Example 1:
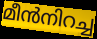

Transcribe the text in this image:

മീൻനിറച്ച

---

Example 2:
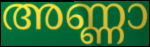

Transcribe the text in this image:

അണ്ണാ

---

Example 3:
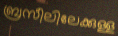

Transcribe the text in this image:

ബ്രസീലിലേക്കുള്ള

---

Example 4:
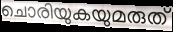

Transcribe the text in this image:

ചൊരിയുകയുമരുത്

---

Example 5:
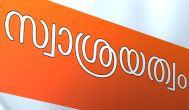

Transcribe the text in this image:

സ്വാശ്രയത്വം